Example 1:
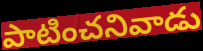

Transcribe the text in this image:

పాటించనివాడు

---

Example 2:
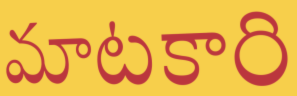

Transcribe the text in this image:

మాటకారి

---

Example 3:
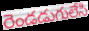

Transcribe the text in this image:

రెండడుగులేసి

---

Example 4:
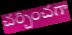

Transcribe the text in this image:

చర్చించగా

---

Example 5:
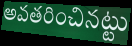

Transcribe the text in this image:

అవతరించినట్టు